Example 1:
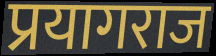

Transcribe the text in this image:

प्रयागराज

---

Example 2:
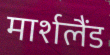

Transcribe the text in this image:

मार्शलैंड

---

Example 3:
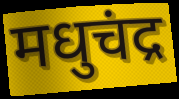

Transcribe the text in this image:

मधुचंद्र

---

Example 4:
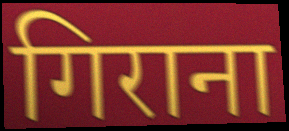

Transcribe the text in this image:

गिराना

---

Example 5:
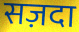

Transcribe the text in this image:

सज़दा